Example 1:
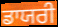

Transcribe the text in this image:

ਡਾਯਰੀ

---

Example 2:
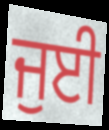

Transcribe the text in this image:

ਜੁਈ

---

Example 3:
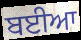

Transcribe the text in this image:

ਬਈਆ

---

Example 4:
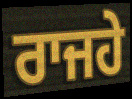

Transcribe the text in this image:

ਰਾਜਹੇ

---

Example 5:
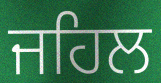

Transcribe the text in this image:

ਜਹਿਲ